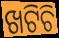
ଖଟିଚି